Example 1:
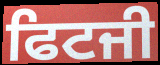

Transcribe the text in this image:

ਫਿਟਜੀ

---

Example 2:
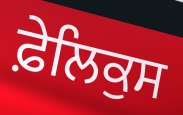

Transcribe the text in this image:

ਫ਼ੇਲਿਕੁਸ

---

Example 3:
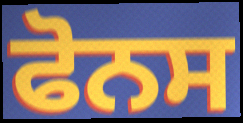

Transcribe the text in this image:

ਫੋਨਸ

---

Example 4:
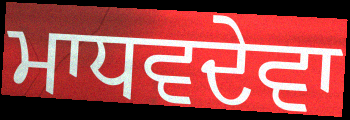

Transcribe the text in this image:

ਮਾਧਵਦੇਵਾ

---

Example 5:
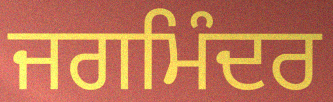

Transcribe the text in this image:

ਜਗਮਿੰਦਰ